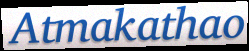
Atmakathao